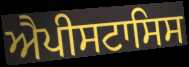
ਐਪੀਸਟਾਸਿਸ